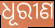
ଧୂରୀଣ